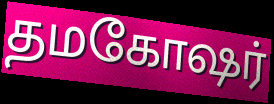
தமகோஷர்